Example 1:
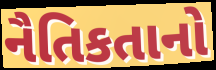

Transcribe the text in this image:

નૈતિકતાનો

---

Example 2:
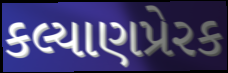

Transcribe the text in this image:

કલ્યાણપ્રેરક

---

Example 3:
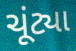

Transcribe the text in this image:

ચૂંટ્યા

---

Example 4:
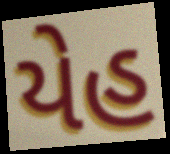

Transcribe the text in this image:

યેહ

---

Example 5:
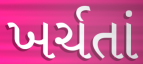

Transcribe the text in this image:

ખર્ચતાં